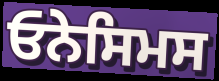
ਓਨੇਸਿਮਸ